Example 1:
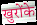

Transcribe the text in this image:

खुरोंके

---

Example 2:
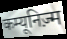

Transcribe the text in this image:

कम्यूनिज़्म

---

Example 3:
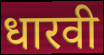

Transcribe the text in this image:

धारवी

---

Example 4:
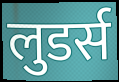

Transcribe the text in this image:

लुडर्स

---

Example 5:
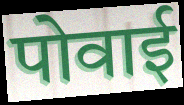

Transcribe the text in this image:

पोवाई